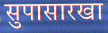
सुपासारखा